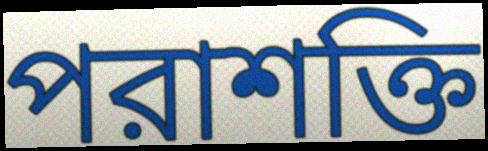
পরাশক্তি